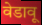
वेडावू